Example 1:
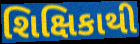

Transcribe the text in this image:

શિક્ષિકાથી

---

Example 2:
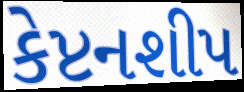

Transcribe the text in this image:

કેપ્ટનશીપ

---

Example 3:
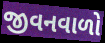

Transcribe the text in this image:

જીવનવાળો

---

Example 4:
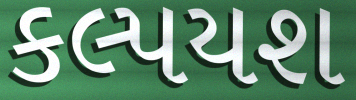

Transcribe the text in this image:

કલ્પયશ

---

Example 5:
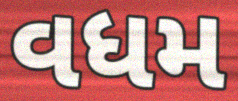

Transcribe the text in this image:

વધમ